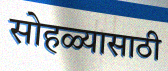
सोहळ्यासाठी